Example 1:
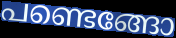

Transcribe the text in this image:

പണ്ടെങ്ങോ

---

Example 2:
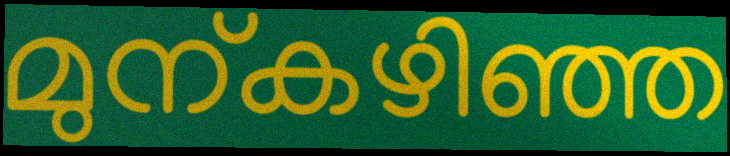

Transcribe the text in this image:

മുന്കഴിഞ്ഞ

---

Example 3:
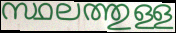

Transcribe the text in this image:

സ്ഥലത്തുള്ള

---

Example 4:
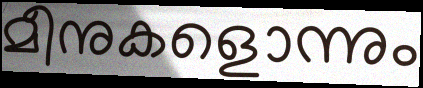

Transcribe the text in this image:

മീനുകളൊന്നും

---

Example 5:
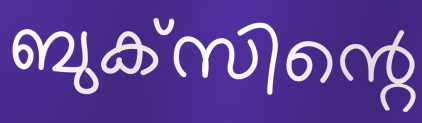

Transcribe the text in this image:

ബുക്‌സിന്റെ